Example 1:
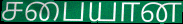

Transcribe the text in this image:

சபையான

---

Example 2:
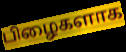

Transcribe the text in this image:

பிழைகளாக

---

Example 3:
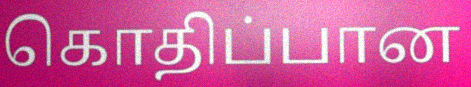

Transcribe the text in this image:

கொதிப்பான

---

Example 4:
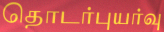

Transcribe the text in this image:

தொடர்புயர்வு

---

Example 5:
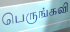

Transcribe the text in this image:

பெருங்கவி